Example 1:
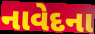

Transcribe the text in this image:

નાવેદના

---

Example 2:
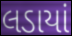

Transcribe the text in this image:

લડાયાં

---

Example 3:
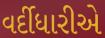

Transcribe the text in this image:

વર્દીધારીએ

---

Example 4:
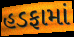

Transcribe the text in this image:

હડફામાં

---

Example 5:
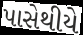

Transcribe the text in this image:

પાસેથીયે